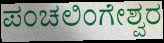
ಪಂಚಲಿಂಗೇಶ್ವರ